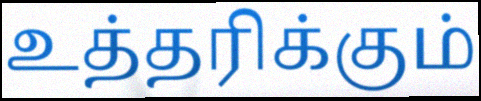
உத்தரிக்கும்